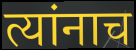
त्यांनाच